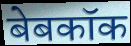
बेबकॉक